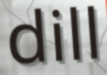
dill